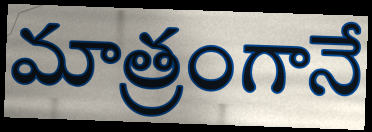
మాత్రంగానే